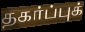
தகர்ப்புக்